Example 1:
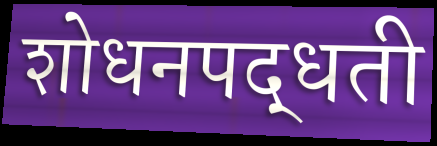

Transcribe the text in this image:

शोधनपद्धती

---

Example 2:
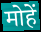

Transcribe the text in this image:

मोहें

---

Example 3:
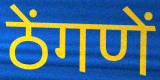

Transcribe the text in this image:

ठेंगणें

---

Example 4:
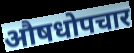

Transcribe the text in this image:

औषधोपचार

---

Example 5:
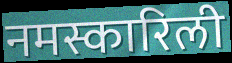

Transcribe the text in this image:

नमस्कारिली